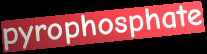
pyrophosphate